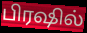
பிரஷில்